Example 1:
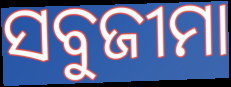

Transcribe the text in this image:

ସବୁଜୀମା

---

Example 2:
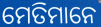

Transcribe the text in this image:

ମେତିମାନେ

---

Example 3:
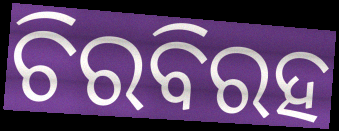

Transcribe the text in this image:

ଚିରବିରହ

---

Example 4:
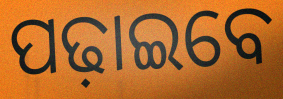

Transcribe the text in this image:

ପଢ଼ାଇବେ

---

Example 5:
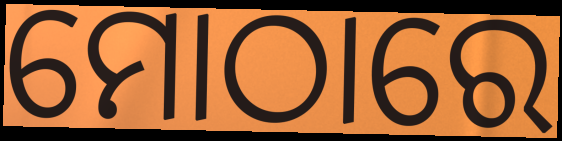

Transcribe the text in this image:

ମୋଠାରେ